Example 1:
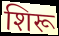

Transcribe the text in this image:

शिरू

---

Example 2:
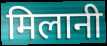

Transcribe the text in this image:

मिलानी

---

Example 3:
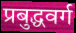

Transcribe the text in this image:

प्रबुद्धवर्ग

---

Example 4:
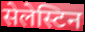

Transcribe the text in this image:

सेलेस्टिन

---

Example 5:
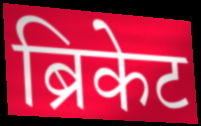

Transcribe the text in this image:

ब्रिकेट